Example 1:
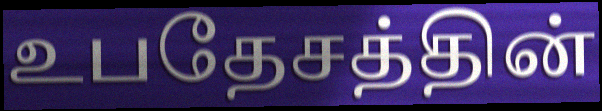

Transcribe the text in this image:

உபதேசத்தின்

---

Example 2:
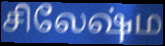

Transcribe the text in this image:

சிலேஷ்ம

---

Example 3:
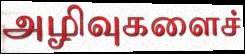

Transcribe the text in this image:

அழிவுகளைச்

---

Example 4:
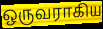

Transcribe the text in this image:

ஒருவராகிய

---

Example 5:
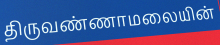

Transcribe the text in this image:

திருவண்ணாமலையின்